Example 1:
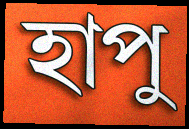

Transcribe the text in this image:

হাপু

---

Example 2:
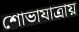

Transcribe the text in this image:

শোভাযাত্রায়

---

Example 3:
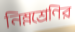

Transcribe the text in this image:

নিম্নশ্রেণির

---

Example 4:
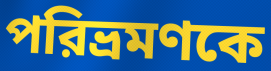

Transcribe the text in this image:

পরিভ্রমণকে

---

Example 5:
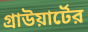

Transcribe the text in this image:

গ্রাউয়ার্টের